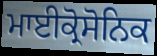
ਮਾਈਕ੍ਰੋਸੋਨਿਕ